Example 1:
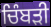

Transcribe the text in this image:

ਚਿੰਬੜੀ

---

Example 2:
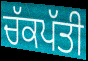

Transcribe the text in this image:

ਚੱਕਪੱਤੀ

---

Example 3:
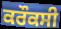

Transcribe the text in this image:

ਕਰੌਕਸੀ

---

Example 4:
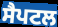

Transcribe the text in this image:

ਸੈਪਟਲ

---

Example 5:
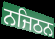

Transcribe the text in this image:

ਨਜਿਠਨ